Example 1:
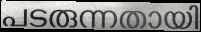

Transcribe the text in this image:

പടരുന്നതായി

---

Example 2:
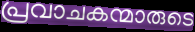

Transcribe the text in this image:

പ്രവാചകന്മാരുടെ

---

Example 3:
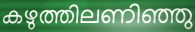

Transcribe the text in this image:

കഴുത്തിലണിഞ്ഞു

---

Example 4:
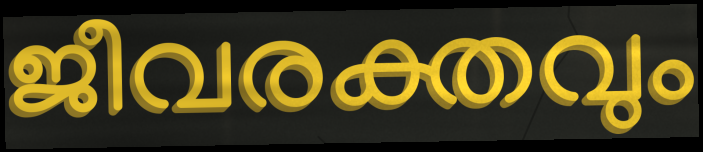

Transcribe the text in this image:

ജീവരക്തവും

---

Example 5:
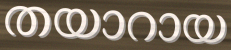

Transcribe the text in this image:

തയാറായ